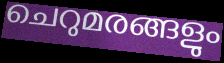
ചെറുമരങ്ങളും